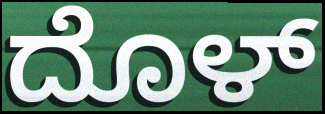
ದೊಳ್